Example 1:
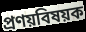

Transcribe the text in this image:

প্রণয়বিষয়ক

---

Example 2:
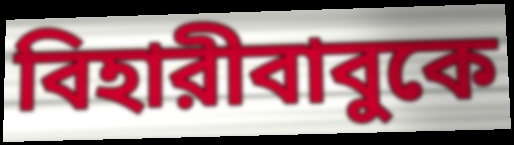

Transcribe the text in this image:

বিহারীবাবুকে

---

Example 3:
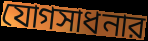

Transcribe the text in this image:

যোগসাধনার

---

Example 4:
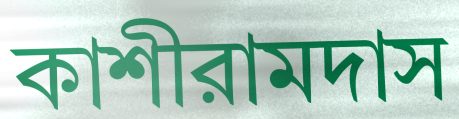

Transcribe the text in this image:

কাশীরামদাস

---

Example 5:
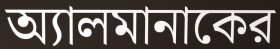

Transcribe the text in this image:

অ্যালমানাকের